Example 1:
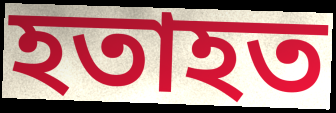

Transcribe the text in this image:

হতাহত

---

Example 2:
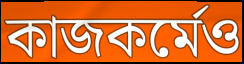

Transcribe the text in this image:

কাজকর্মেও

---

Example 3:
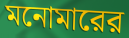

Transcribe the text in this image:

মনোমারের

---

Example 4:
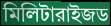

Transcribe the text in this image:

মিলিটারাইজড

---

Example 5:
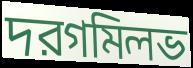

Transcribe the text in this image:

দরগমিলভ